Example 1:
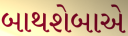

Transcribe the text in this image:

બાથશેબાએ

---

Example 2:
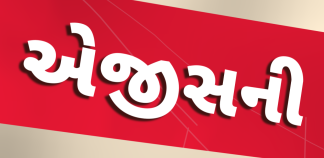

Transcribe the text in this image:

એજીસની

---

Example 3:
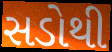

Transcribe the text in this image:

સડોથી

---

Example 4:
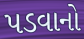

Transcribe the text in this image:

પડવાનો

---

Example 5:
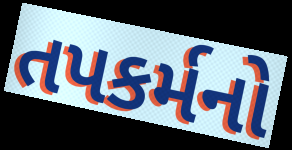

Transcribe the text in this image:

તપકર્મનો